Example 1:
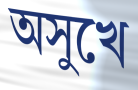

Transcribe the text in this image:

অসুখে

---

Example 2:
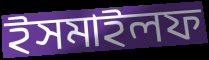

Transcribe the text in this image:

ইসমাইলফ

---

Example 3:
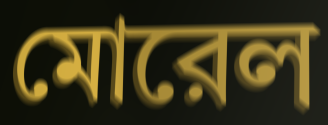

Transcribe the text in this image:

মোরেল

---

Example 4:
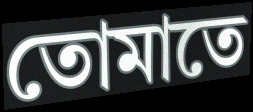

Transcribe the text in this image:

তোমাতে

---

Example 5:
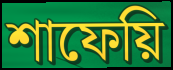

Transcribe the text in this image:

শাফেয়ি